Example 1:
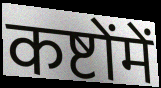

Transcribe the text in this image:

कष्टोंमें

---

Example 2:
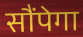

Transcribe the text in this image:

सौंपेगा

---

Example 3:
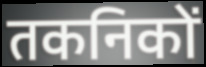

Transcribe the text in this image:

तकनिकों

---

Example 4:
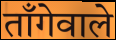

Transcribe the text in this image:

ताँगेवाले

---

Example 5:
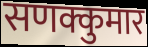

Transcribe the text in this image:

सणक्कुमार